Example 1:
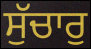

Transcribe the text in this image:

ਸੁੱਚਾਰੁ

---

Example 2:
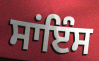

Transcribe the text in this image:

ਸਾਂਇੰਸ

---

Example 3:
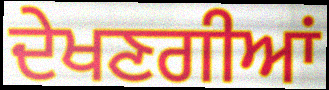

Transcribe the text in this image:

ਦੇਖਣਗੀਆਂ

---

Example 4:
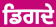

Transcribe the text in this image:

ਡਿਗਦੇ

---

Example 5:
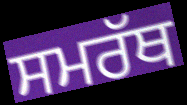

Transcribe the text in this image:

ਸਮਰੱਥ